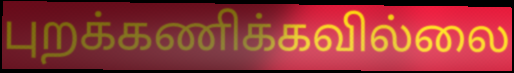
புறக்கணிக்கவில்லை